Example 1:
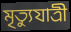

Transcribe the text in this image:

মৃত্যুযাত্রী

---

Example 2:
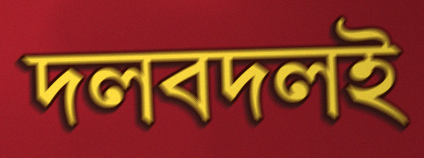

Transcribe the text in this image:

দলবদলই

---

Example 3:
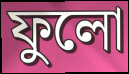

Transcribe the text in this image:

ফুলো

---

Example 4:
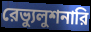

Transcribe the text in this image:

রেভ্যুলুশনারি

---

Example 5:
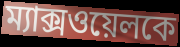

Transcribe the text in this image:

ম্যাক্সওয়েলকে